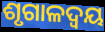
ଶୃଗାଳଦ୍ୱୟ